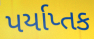
પર્યાપ્તક